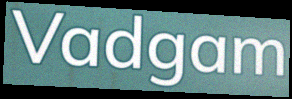
Vadgam